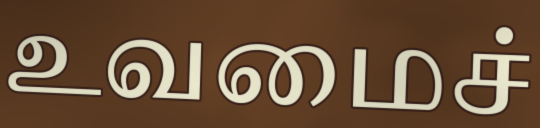
உவமைச்